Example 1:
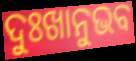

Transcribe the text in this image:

ଦୁଃଖାନୁଭବ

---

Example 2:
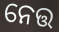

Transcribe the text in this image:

ନେତ୍ତ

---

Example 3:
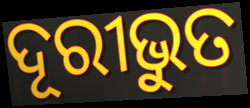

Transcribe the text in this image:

ଦୂରୀଭୁତ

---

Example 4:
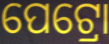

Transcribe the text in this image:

ପେଟ୍ରୋ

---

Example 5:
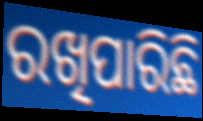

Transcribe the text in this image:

ରଖିପାରିଛି